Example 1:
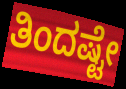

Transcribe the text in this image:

ತಿಂದಷ್ಟೇ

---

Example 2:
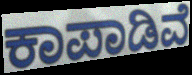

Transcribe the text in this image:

ಕಾಪಾಡಿವೆ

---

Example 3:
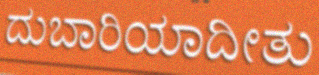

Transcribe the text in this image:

ದುಬಾರಿಯಾದೀತು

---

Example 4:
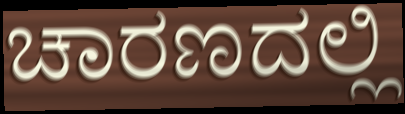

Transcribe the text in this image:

ಚಾರಣದಲ್ಲಿ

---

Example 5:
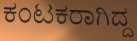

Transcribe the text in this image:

ಕಂಟಕರಾಗಿದ್ದ